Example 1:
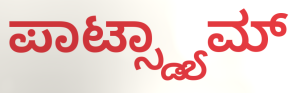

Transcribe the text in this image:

ಪಾಟ್ಸ್ಡ್ಯಾಮ್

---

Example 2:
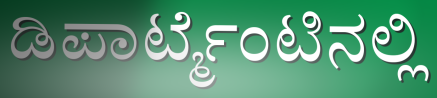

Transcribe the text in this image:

ಡಿಪಾರ್ಟ್ಮೆಂಟಿನಲ್ಲಿ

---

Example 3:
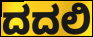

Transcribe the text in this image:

ದದಲಿ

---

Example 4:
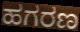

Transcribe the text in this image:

ಹಗರಣ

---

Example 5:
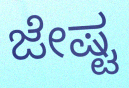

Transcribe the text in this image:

ಜೇಷ್ಟ